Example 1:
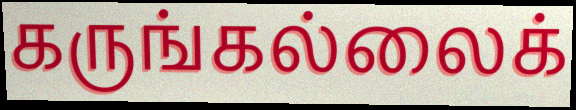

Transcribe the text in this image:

கருங்கல்லைக்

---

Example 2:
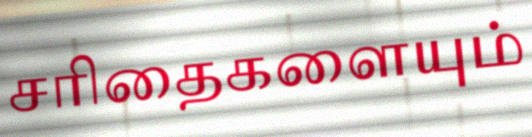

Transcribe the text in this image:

சரிதைகளையும்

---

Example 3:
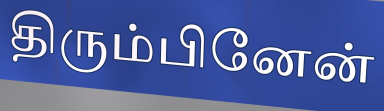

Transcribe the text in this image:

திரும்பினேன்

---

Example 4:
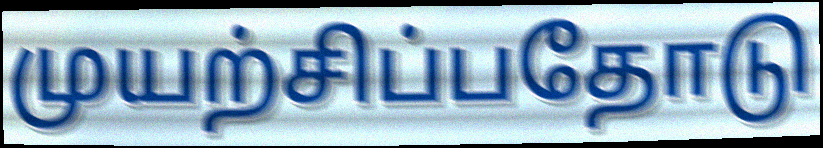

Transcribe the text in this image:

முயற்சிப்பதோடு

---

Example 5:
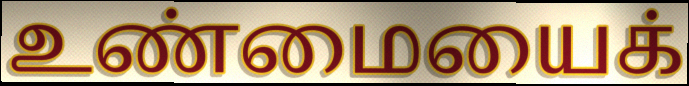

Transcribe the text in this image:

உண்மையைக்